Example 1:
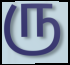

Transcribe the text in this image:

ரு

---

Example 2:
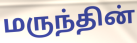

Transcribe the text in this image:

மருந்தின்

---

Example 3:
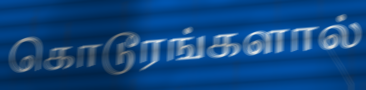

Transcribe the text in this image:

கொடூரங்களால்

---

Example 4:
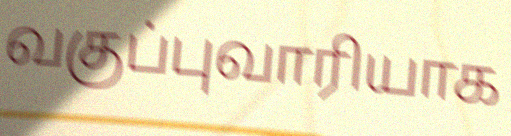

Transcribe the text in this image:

வகுப்புவாரியாக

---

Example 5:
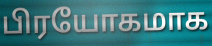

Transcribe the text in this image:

பிரயோகமாக